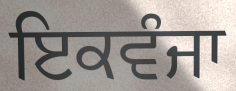
ਇਕਵੰਜਾ